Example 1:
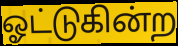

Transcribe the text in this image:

ஓட்டுகின்ற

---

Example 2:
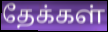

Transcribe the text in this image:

தேக்கள்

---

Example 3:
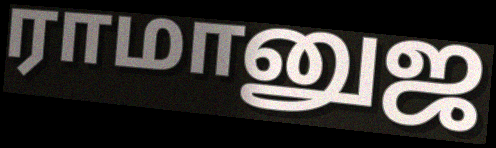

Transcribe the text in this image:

ராமானுஜ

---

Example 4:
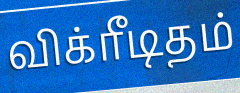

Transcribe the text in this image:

விக்ரீடிதம்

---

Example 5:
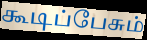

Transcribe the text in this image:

கூடிப்பேசும்